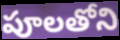
పూలతోని